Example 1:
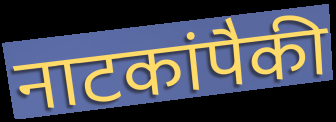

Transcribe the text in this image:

नाटकांपैकी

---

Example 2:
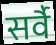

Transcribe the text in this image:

सर्वै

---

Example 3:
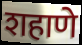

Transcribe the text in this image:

शहाणे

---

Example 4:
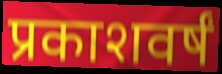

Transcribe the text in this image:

प्रकाशवर्षं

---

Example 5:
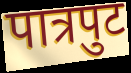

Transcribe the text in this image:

पात्रपुट